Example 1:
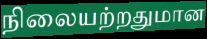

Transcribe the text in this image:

நிலையற்றதுமான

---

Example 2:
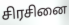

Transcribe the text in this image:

சிரசினை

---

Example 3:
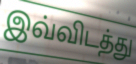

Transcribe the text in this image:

இவ்விடத்து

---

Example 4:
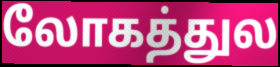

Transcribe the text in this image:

லோகத்துல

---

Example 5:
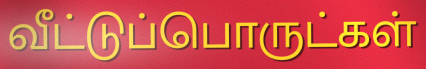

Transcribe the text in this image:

வீட்டுப்பொருட்கள்